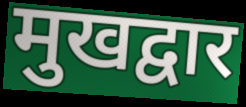
मुखद्वार